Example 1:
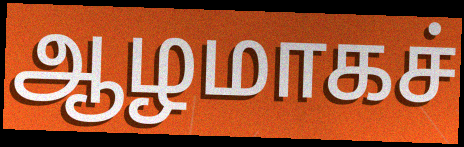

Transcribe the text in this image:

ஆழமாகச்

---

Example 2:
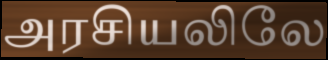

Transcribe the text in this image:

அரசியலிலே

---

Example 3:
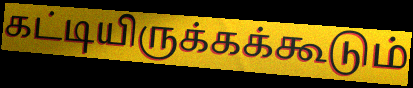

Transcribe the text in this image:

கட்டியிருக்கக்கூடும்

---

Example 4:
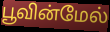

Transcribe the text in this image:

பூவின்மேல்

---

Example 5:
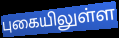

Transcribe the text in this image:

புகையிலுள்ள